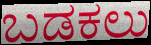
ಬಡಕಲು